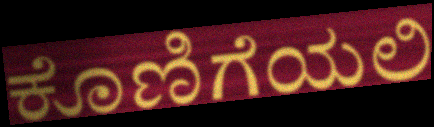
ಕೊಣಿಗೆಯಲಿ